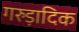
गरुड़ादिक